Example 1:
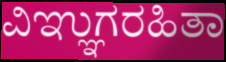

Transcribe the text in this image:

ವಿಞ್ಞುಗರಹಿತಾ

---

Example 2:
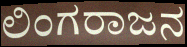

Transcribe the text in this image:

ಲಿಂಗರಾಜನ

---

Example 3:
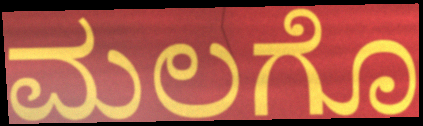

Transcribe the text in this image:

ಮಲಗೊ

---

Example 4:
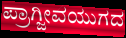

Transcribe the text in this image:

ಪ್ರಾಗ್ಜೀವಯುಗದ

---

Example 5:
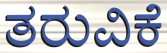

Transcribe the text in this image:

ತರುವಿಕೆ